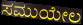
ಸಮುಯೇಲ